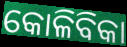
କୋଳିବିକା